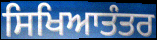
ਸਿਖਿਆਤੰਤਰ